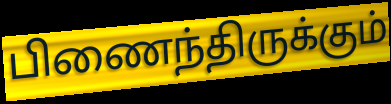
பிணைந்திருக்கும்